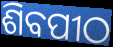
ଶିବପୀଠ